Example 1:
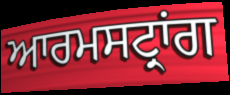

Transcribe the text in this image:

ਆਰਮਸਟ੍ਰਾਂਗ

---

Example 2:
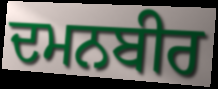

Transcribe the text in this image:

ਦਮਨਬੀਰ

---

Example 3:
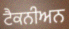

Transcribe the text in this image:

ਟੈਕਨੀਅਨ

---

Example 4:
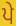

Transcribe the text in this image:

ਪੇ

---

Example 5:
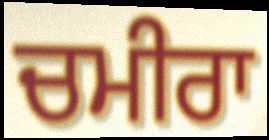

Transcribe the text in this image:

ਚਮੀਰਾ